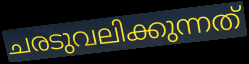
ചരടുവലിക്കുന്നത്